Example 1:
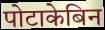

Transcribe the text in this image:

पोटाकेबिन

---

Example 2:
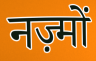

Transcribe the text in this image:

नज़्मों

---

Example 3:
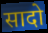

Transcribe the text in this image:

सादो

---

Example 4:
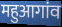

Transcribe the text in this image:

महुआगांव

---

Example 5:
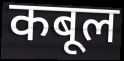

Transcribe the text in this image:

कबूल